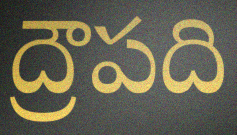
ద్రౌపది